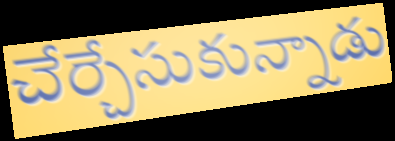
చేర్చేసుకున్నాడు